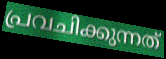
പ്രവചിക്കുന്നത്